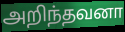
அறிந்தவனா